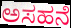
ಅಸಹನೆ